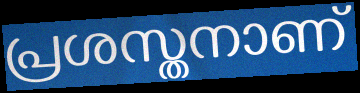
പ്രശസ്തനാണ്